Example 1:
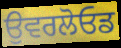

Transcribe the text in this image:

ਉਵਰਲੋਓਡ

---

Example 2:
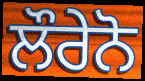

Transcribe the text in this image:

ਲੌਰੇਨੋ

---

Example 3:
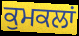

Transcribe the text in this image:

ਕੁਮਕਲਾਂ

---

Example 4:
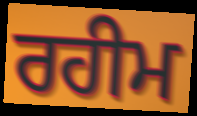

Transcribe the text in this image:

ਰਹੀਮ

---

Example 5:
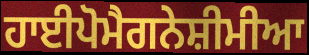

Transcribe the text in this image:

ਹਾਈਪੋਮੈਗਨੇਸ਼ੀਮੀਆ